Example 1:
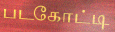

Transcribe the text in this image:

படகோட்டி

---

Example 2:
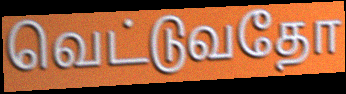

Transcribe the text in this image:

வெட்டுவதோ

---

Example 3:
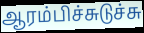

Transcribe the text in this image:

ஆரம்பிச்சுடுச்சு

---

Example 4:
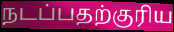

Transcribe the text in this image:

நடப்பதற்குரிய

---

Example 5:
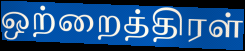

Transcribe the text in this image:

ஒற்றைத்திரள்